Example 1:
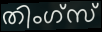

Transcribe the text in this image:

തിംഗ്സ്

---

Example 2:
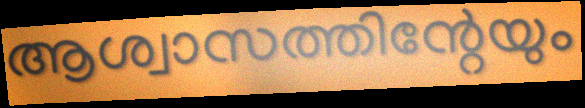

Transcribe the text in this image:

ആശ്വാസത്തിന്റേയും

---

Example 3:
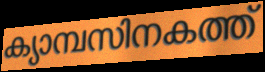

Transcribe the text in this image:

ക്യാമ്പസിനകത്ത്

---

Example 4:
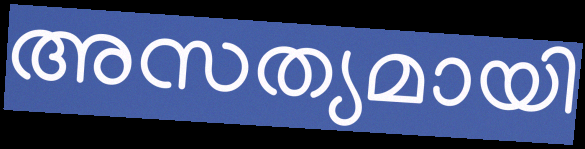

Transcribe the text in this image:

അസത്യമായി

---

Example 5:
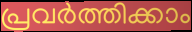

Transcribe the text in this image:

പ്രവർത്തിക്കാം